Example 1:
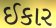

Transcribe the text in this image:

ઈકાર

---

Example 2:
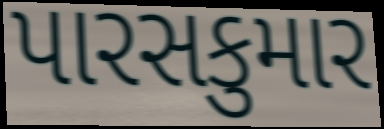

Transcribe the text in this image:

પારસકુમાર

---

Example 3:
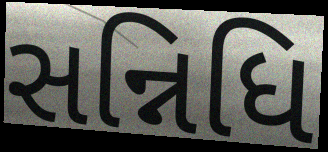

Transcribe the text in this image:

સન્નિધિ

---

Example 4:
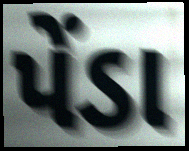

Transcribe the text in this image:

પેંડા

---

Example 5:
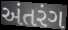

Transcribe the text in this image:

અંતરંગ